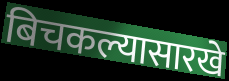
बिचकल्यासारखे